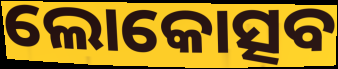
ଲୋକୋତ୍ସବ